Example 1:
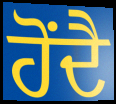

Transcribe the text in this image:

ਹੋਂਦੈ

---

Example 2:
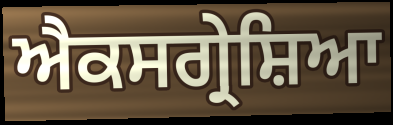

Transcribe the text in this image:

ਐਕਸਗ੍ਰੇਸ਼ਿਆ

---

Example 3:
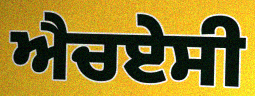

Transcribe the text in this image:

ਐਚਏਸੀ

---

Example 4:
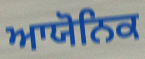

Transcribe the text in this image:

ਆਯੋਨਿਕ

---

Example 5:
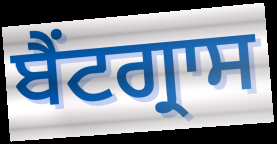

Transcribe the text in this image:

ਬੈਂਟਗ੍ਰਾਸ